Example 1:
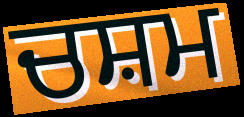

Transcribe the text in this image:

ਚਸ਼ਮ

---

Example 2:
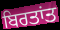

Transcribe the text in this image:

ਬਿਰਤਾਂਤ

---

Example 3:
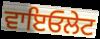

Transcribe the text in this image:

ਵਾਇਓਲੇਟ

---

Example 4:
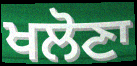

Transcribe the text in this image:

ਖਲੋਣਾ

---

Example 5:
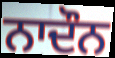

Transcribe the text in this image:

ਨਾਦੌਨ